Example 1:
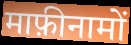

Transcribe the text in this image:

माफ़ीनामों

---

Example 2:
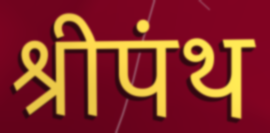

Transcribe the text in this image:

श्रीपंथ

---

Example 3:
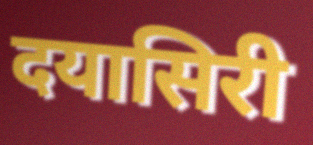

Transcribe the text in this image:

दयासिरी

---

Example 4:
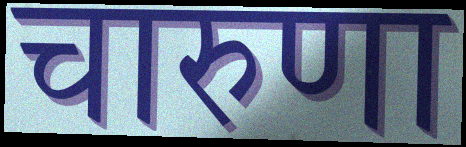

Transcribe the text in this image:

चारुणा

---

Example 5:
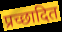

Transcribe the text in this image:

प्रच्छादित